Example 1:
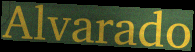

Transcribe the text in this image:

Alvarado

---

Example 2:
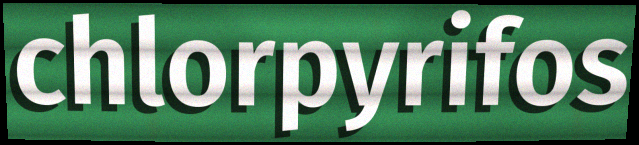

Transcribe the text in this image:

chlorpyrifos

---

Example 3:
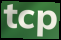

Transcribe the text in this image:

tcp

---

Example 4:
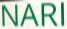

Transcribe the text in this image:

NARI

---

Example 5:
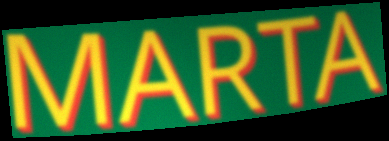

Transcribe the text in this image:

MARTA